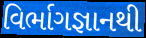
વિર્ભાગજ્ઞાનથી